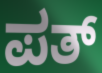
ಪತ್